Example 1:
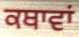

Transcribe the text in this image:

ਕਥਾਵਾਂ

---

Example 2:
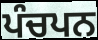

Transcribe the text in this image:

ਪੰਚਪਨ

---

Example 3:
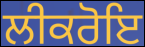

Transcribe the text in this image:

ਲੀਕਰੋਇ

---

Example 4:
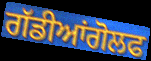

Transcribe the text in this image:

ਗੱਡੀਆਂਗੋਲਫ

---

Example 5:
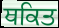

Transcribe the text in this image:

ਥਕਿਤ